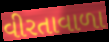
વીરતાવાળા